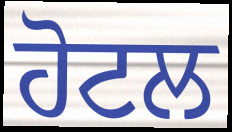
ਹੋਟਲ